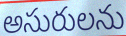
అసురులను